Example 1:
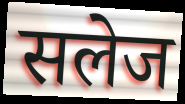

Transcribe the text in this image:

सलेज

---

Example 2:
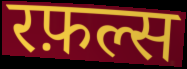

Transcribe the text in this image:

रफ़ल्स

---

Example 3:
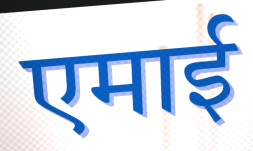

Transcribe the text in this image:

एमाई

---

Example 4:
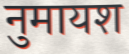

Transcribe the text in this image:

नुमायश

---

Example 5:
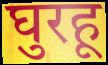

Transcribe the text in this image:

घुरहू